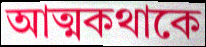
আত্মকথাকে